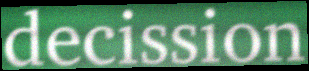
decission